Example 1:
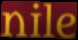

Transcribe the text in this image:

nile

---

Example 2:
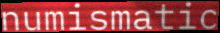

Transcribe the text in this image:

numismatic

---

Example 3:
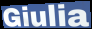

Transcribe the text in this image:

Giulia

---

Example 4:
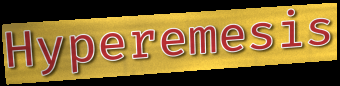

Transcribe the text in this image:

Hyperemesis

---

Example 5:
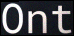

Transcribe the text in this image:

Ont